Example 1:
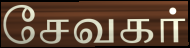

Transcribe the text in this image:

சேவகர்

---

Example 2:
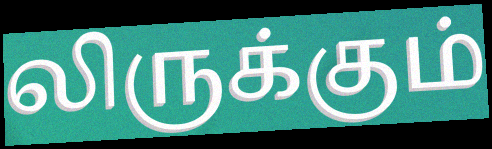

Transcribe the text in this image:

லிருக்கும்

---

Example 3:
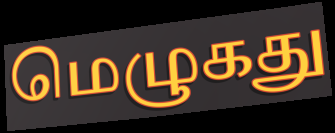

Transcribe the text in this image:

மெழுகது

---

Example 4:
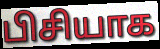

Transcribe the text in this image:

பிசியாக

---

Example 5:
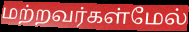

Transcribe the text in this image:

மற்றவர்கள்மேல்